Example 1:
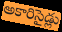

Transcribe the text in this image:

అకారిసైడ్లు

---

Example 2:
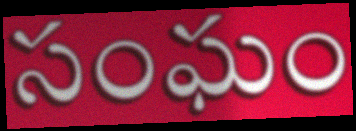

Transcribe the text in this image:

సంఘం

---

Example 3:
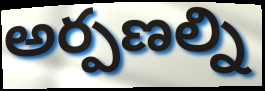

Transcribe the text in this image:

అర్పణల్ని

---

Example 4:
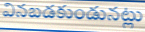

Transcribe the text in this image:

వినబడకుండునట్లు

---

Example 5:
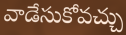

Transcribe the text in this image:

వాడేసుకోవచ్చు